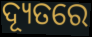
ଦ୍ୟୂତରେ